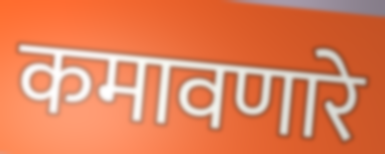
कमावणारे